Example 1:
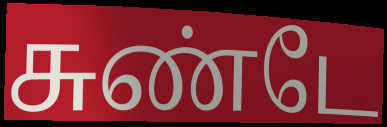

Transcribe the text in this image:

சுண்டே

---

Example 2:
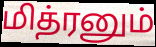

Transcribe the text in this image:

மித்ரனும்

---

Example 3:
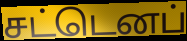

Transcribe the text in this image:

சட்டெனப்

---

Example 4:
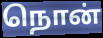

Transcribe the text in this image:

நொன்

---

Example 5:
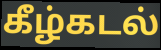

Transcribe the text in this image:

கீழ்கடல்